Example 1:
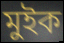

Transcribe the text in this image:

মুইক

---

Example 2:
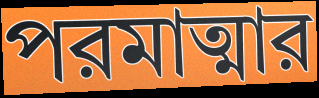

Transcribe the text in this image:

পরমাত্মার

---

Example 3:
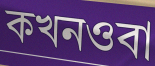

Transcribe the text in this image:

কখনওবা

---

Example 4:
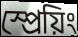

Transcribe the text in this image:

স্প্রেয়িং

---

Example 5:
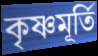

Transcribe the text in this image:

কৃষ্ণমূর্তি